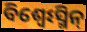
ବିଶ୍ଵେଽସ୍ମିନ୍